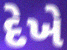
દેખે